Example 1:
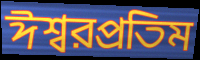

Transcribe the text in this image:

ঈশ্বরপ্রতিম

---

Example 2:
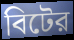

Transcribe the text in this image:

বিটের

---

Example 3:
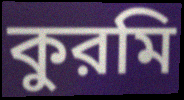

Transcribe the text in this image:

কুরমি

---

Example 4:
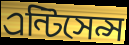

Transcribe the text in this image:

এন্টিসেন্স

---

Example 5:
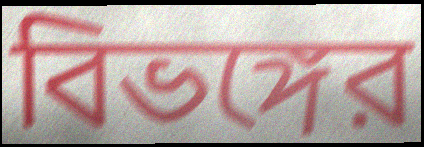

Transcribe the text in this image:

বিভঙ্গের